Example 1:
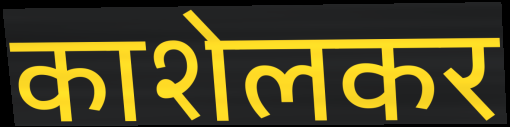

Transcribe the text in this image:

काशेलकर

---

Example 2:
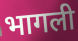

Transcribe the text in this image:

भागली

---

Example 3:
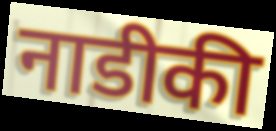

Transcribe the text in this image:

नाडीकी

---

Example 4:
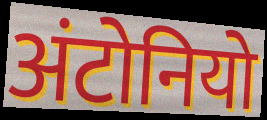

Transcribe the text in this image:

अंटोनियो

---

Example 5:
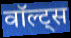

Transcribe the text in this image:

वॉल्ट्स